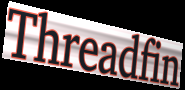
Threadfin